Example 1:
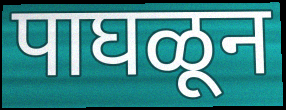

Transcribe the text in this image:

पाघळून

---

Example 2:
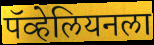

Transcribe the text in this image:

पॅव्हेलियनला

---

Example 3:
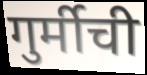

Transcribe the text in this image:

गुर्मीची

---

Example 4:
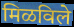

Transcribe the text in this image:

मिळविले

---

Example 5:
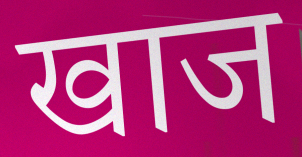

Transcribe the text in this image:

खाज